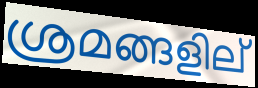
ശ്രമങ്ങളില്